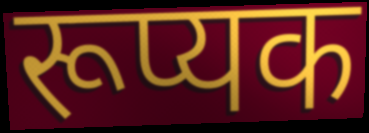
रूप्यक